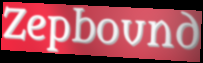
Zepbound